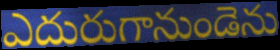
ఎదురుగానుండెను